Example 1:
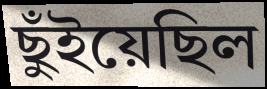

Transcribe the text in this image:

ছুঁইয়েছিল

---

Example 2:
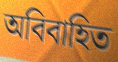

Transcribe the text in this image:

অবিবাহিত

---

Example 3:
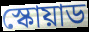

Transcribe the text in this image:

স্কোয়াড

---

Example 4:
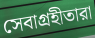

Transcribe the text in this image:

সেবাগ্রহীতারা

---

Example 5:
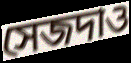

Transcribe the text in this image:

সেজদাও